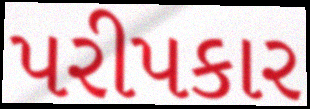
પરીપકાર